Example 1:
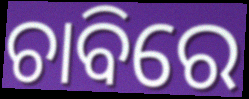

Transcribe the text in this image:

ଚାବିରେ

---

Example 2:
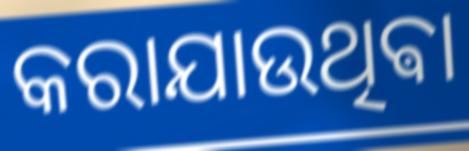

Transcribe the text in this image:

କରାଯାଉଥିଵା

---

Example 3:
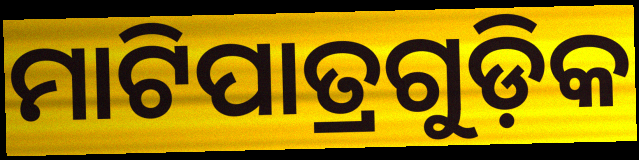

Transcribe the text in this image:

ମାଟିପାତ୍ରଗୁଡ଼ିକ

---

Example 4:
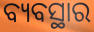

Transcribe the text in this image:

ବ୍ୟବସ୍ଥାର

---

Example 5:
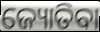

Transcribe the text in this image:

ଜ୍ୟୋତିବା